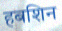
हबशिन